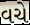
વચે